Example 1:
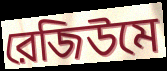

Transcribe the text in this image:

রেজিউমে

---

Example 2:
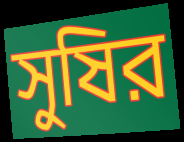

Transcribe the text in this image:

সুষির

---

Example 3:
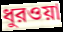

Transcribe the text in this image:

ধুরওয়া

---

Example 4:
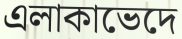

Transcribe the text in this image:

এলাকাভেদে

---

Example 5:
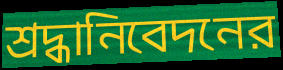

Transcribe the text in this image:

শ্রদ্ধানিবেদনের